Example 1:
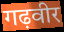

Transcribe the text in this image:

गढ़वीर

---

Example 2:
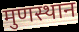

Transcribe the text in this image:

मुणस्थान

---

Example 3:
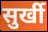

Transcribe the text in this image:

सुर्खी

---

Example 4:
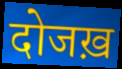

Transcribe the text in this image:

दोजख़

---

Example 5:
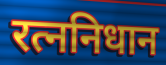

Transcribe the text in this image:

रत्ननिधान